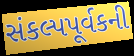
સંકલ્પપૂર્વકની